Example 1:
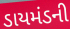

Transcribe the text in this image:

ડાયમંડની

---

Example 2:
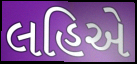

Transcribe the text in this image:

લહિએ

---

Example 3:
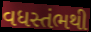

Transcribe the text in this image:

વધસ્તંભથી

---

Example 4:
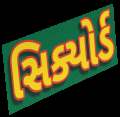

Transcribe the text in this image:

સિક્યોર્ડ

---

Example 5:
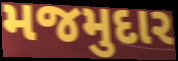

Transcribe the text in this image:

મજમુદાર